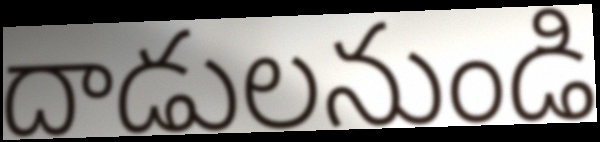
దాడులనుండి